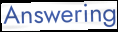
Answering